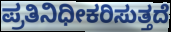
ಪ್ರತಿನಿಧೀಕರಿಸುತ್ತದೆ